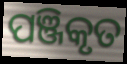
ପଞ୍ଜିକୃତ